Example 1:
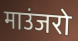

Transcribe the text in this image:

माउंजरो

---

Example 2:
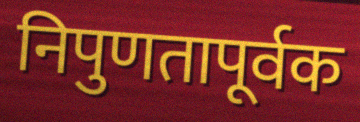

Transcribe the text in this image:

निपुणतापूर्वक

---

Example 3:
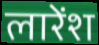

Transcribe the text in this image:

लारेंश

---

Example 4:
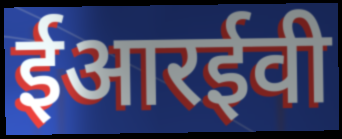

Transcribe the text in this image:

ईआरईवी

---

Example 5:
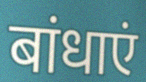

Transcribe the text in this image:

बांधाएं